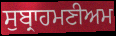
ਸੁਬ੍ਰਾਹਮਣੀਅਮ